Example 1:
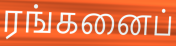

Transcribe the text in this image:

ரங்கனைப்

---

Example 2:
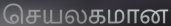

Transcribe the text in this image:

செயலகமான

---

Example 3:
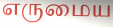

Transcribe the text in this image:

எருமைய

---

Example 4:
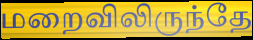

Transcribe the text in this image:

மறைவிலிருந்தே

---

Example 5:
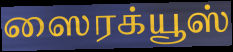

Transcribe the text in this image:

ஸைரக்யூஸ்